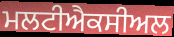
ਮਲਟੀਐਕਸੀਅਲ